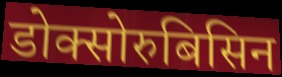
डोक्सोरुबिसिन